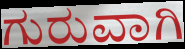
ಗುರುವಾಗಿ